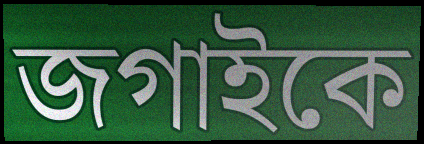
জগাইকে